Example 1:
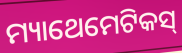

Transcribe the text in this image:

ମ୍ୟାଥେମେଟିକସ୍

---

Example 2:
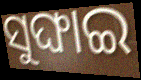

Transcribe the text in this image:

ସୁଙ୍ଘାଇ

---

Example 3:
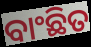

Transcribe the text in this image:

ବାଂଛିତ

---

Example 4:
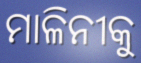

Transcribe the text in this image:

ମାଳିନୀକୁ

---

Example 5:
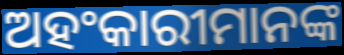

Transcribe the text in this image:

ଅହଂକାରୀମାନଙ୍କ